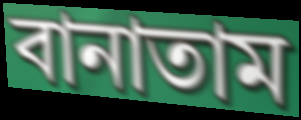
বানাতাম